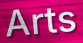
Arts